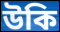
উকি